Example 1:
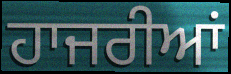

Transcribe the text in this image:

ਹਾਜਰੀਆਂ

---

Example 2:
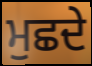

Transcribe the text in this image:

ਮੁਛਦੇ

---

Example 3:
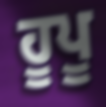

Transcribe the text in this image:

ਹੂਪੂ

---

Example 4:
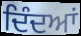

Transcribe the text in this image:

ਦਿੰਦਆਂ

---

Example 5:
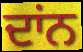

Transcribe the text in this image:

ਦਾਂਨ